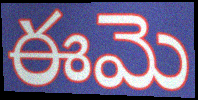
ఈమె